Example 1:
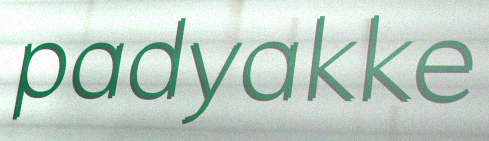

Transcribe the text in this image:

padyakke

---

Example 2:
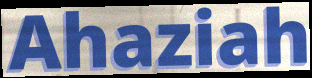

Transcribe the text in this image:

Ahaziah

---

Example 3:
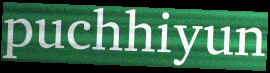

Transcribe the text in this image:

puchhiyun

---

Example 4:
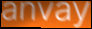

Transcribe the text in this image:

anvay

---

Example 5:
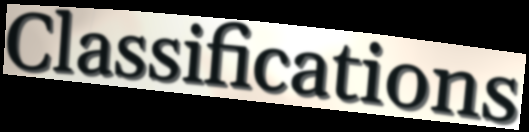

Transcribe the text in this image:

Classifications